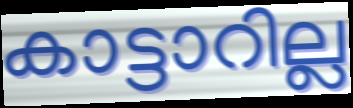
കാട്ടാറില്ല